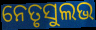
ନେତୃସୁଲଭ